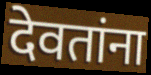
देवतांना